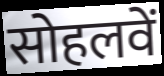
सोहलवें